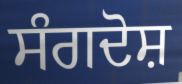
ਸੰਗਦੋਸ਼